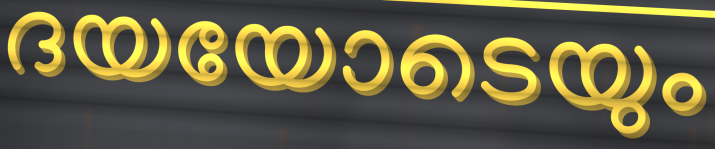
ദയയോടെയും